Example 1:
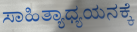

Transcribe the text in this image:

ಸಾಹಿತ್ಯಾಧ್ಯಯನಕ್ಕೆ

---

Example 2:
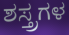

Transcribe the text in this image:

ಶಸ್ತ್ರಗಳ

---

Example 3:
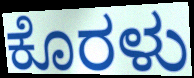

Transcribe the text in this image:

ಕೊರಳು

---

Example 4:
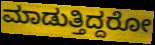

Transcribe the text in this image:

ಮಾಡುತ್ತಿದ್ದರೋ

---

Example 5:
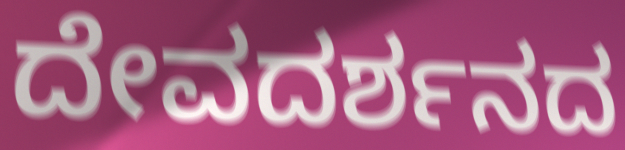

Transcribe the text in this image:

ದೇವದರ್ಶನದ